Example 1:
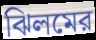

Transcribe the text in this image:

ঝিলমের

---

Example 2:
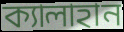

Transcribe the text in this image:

ক্যালাহান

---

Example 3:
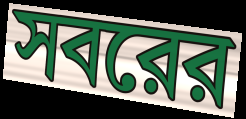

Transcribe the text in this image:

সবরের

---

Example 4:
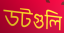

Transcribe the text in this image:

ডটগুলি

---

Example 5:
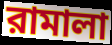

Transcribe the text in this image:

রামালা